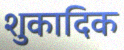
शुकादिक